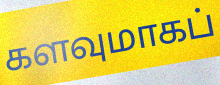
களவுமாகப்